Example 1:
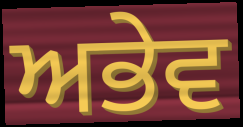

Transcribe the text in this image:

ਅਭੇਵ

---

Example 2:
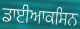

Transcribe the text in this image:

ਡਾਈਆਕਸਿਨ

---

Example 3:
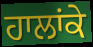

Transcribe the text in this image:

ਹਾਲਾਂਕੇ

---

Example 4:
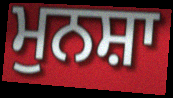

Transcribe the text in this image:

ਮੁਨਸ਼ਾ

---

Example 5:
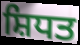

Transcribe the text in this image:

ਸ਼ਿਧਤ